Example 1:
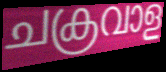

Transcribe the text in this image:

ചക്രവാള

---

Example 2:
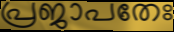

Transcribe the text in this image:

പ്രജാപതേഃ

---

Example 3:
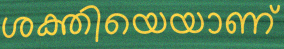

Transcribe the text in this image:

ശക്തിയെയാണ്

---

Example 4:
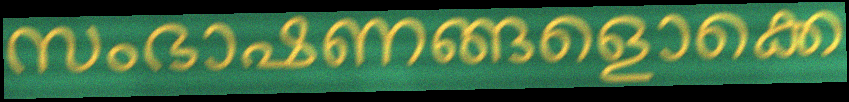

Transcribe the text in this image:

സംഭാഷണങ്ങളൊക്കെ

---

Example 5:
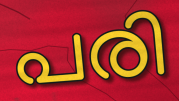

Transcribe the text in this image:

പരി